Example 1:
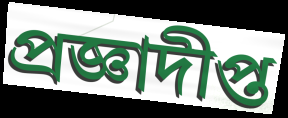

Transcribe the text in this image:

প্রজ্ঞাদীপ্ত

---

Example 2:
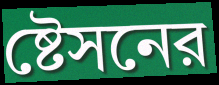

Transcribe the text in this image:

ষ্টেসনের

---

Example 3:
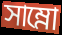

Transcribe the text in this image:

সাম্নো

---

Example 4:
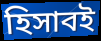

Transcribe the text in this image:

হিসাবই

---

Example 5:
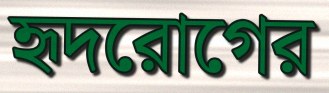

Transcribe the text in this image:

হৃদরোগের